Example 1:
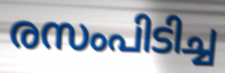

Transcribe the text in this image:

രസംപിടിച്ച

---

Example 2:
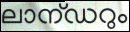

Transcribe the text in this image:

ലാന്ഡറും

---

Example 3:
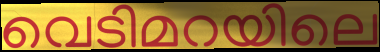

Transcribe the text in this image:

വെടിമറയിലെ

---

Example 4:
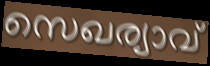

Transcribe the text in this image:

സെഖര്യാവ്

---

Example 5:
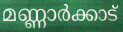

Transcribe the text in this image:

മണ്ണാർക്കാട്